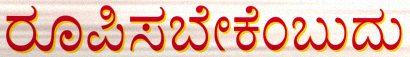
ರೂಪಿಸಬೇಕೆಂಬುದು